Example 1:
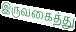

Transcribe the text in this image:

இருவகைத்து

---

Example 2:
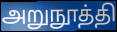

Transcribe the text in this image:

அறுநூத்தி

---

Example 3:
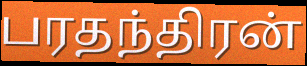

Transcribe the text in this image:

பரதந்திரன்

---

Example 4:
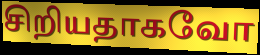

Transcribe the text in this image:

சிறியதாகவோ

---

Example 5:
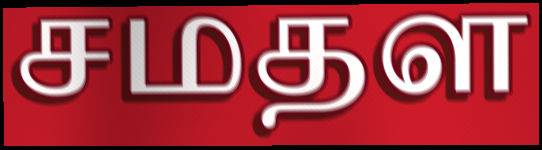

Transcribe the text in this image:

சமதள